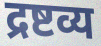
द्रष्टव्य